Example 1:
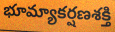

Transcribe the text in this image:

భూమ్యాకర్షణశక్తి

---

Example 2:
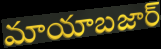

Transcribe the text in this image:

మాయాబజార్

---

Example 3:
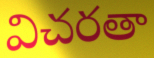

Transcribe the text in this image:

విచరతా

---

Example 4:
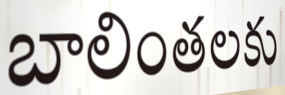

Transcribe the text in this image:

బాలింతలకు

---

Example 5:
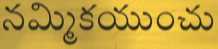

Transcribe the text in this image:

నమ్మికయుంచు